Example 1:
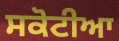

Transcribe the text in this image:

ਸਕੋਟੀਆ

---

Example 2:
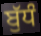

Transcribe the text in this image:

ਬੁੱਧੰ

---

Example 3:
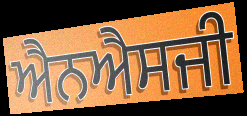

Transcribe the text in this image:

ਐਨਐਸਜੀ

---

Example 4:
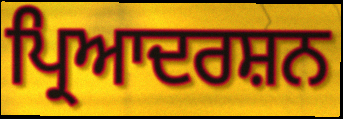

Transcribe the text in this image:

ਪ੍ਰਿਆਦਰਸ਼ਨ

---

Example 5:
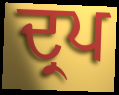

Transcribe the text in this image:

ਦ੍ਰਪ